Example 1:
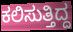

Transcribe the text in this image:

ಕಲಿಸುತ್ತಿದ್ದ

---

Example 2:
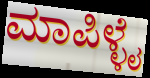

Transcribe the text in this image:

ಮಾಪಿಳ್ಳೈ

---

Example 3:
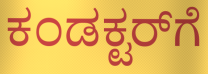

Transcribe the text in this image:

ಕಂಡಕ್ಟರ್‌ಗೆ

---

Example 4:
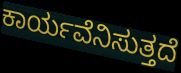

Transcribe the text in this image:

ಕಾರ್ಯವೆನಿಸುತ್ತದೆ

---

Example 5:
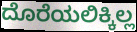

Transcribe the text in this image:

ದೊರೆಯಲಿಕ್ಕಿಲ್ಲ